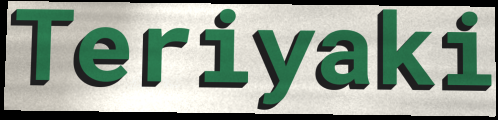
Teriyaki